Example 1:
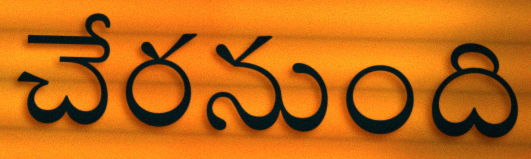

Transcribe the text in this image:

చేరనుంది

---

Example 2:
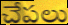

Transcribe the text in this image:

చేపలు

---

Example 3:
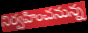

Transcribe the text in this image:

నిర్వహించనున్న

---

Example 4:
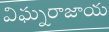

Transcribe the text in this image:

విఘ్నరాజాయ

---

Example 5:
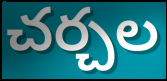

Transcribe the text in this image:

చర్చల